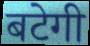
बटेगी